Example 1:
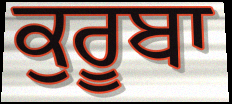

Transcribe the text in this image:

ਕੁਰੂਬਾ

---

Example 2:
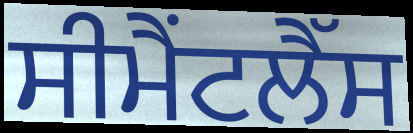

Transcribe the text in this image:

ਸੀਮੈਂਟਲੈੱਸ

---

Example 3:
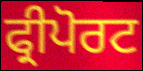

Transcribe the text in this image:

ਫ੍ਰੀਪੋਰਟ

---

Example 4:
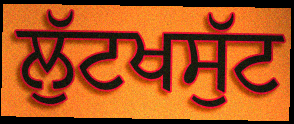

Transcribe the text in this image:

ਲੁੱਟਖਸੁੱਟ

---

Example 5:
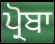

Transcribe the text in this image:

ਪ੍ਰੋਬਾ